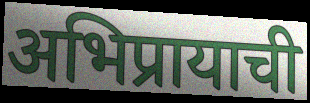
अभिप्रायाची